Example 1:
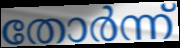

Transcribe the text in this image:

തോർന്ന്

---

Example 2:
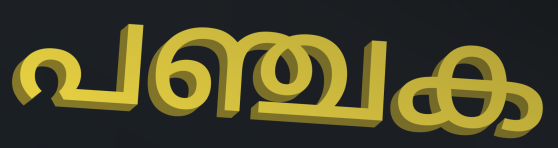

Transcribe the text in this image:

പഞ്ചക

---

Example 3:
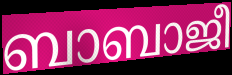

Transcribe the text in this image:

ബാബാജീ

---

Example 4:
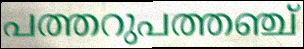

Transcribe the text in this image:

പത്തറുപത്തഞ്ച്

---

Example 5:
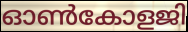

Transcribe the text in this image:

ഓൺകോളജി